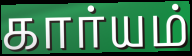
கார்யம்